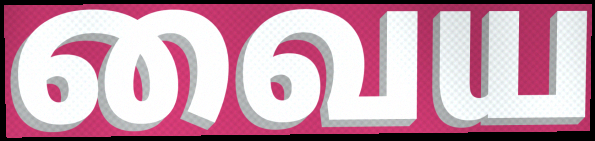
வைய